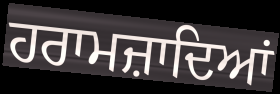
ਹਰਾਮਜ਼ਾਦਿਆਂ